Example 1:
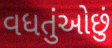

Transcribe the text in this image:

વધતુંઓછું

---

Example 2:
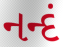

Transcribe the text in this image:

નન્દં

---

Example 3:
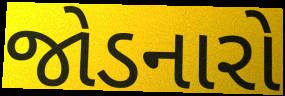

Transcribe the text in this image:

જોડનારો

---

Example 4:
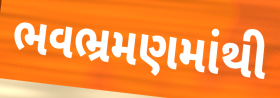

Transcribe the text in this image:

ભવભ્રમણમાંથી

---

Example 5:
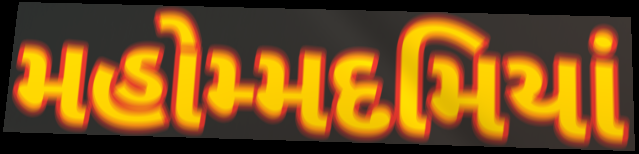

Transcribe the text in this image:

મહોમ્મદમિયાં